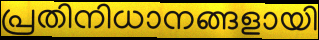
പ്രതിനിധാനങ്ങളായി